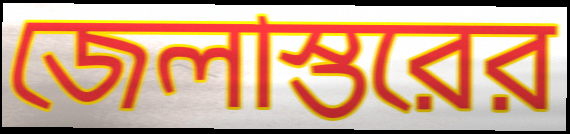
জেলাস্তরের